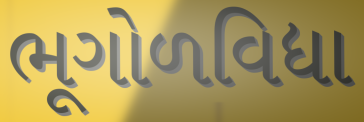
ભૂગોળવિદ્યા